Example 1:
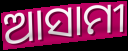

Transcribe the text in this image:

ଆସାମୀ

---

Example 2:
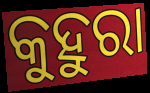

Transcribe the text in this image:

କୁହୁରା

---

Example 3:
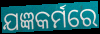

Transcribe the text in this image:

ଯଜ୍ଞକର୍ମରେ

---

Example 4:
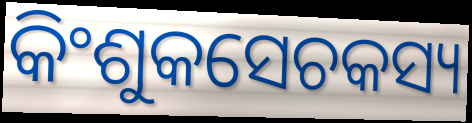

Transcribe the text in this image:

କିଂଶୁକସେଚକସ୍ୟ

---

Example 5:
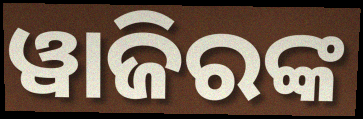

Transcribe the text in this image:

ୱାଜିରଙ୍କ